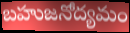
బహుజనోద్యమం